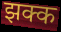
झक्क